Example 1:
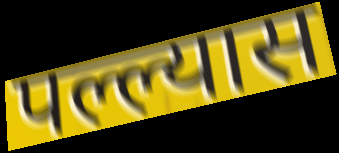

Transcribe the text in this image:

पल्ल्यास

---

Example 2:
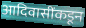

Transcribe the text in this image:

आदिवासींकडून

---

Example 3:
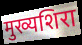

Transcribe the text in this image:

मुख्यशिरा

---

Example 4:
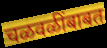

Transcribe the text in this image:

चळवळींबाबत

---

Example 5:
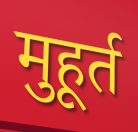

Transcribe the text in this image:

मुहूर्त